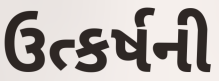
ઉત્કર્ષની